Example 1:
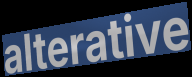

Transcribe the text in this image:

alterative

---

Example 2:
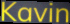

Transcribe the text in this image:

Kavin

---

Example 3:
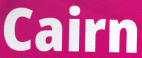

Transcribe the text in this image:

Cairn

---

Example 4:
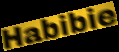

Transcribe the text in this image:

Habibie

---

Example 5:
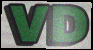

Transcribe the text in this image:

VD